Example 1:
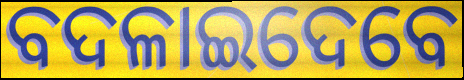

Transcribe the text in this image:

ବଦଳାଇଦେବେ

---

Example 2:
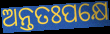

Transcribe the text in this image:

ଅନ୍ତତଃପକ୍ଷେ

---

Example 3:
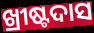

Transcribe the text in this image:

ଖ୍ରୀଷ୍ଟଦାସ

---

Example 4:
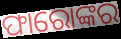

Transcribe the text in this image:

ଫାରୋଙ୍କର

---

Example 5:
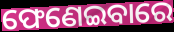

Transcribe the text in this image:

ଫେଣେଇବାରେ